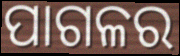
ପାଗଳର